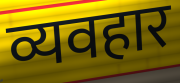
व्यवहार